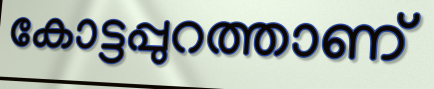
കോട്ടപ്പുറത്താണ്